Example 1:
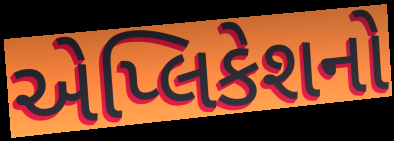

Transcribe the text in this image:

એપ્લિકેશનો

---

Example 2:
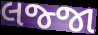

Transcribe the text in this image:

લજ્જા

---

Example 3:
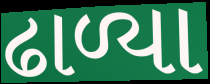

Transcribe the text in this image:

ઢાળ્યા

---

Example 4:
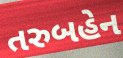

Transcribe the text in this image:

તરુબહેન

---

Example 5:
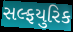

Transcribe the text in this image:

સલ્ફયુરિક